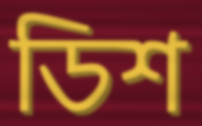
ডিশ